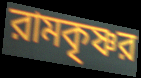
রামকৃষ্ণর